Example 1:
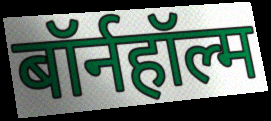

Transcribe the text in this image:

बॉर्नहॉल्म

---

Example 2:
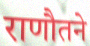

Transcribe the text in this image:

राणौतने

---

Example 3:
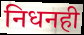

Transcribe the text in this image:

निधनही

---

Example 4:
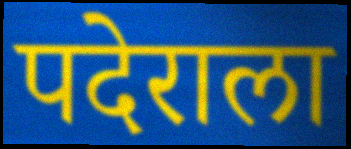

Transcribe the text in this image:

पदेराला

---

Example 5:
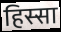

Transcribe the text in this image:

हिस्सा